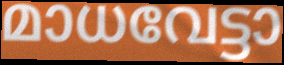
മാധവേട്ടാ